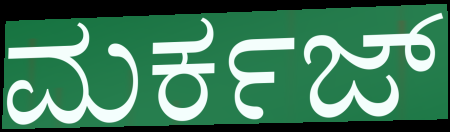
ಮರ್ಕಜ್